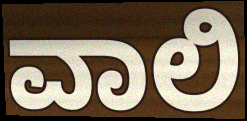
ವಾಲಿ